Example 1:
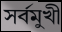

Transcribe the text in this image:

সর্বমুখী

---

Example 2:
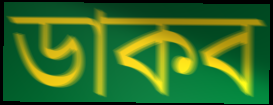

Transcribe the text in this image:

ডাকব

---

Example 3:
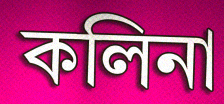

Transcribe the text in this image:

কলিনা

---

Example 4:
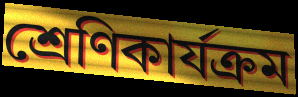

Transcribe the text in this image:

শ্রেণিকার্যক্রম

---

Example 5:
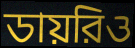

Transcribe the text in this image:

ডায়রিও